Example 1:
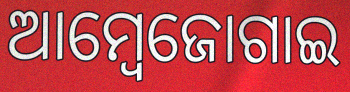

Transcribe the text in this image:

ଆମ୍ବେଜୋଗାଇ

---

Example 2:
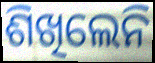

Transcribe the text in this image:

ଶିଖିଲେନି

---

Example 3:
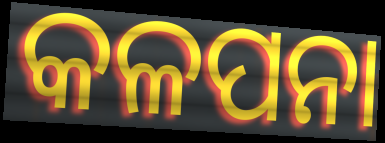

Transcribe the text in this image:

କଳପନା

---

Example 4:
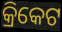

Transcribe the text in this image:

କ୍ରିକେଟ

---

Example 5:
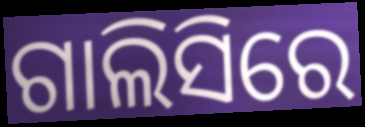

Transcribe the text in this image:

ଗାଲିସିରେ